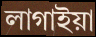
লাগাইয়া